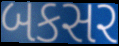
બકસર